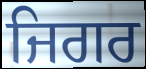
ਜਿਗਰ